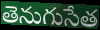
తెనుగుసేత